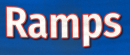
Ramps